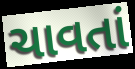
ચાવતાં